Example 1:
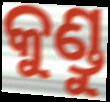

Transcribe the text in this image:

କୁଣ୍ଡୁ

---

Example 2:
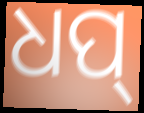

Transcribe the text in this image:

ଧପ୍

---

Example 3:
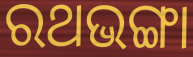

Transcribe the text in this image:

ରଥଭଙ୍ଗା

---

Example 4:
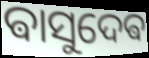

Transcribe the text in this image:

ଵାସୁଦେଵ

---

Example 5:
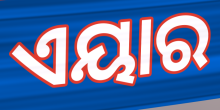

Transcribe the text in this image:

ଏୟାର